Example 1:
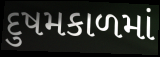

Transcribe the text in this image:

દુષમકાળમાં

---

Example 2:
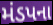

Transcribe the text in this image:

મંડપના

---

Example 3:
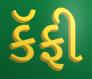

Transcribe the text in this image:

કૅફી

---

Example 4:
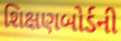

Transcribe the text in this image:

શિક્ષણબોર્ડની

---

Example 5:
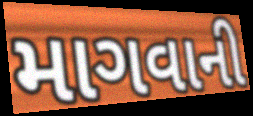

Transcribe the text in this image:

માગવાની